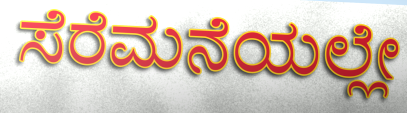
ಸೆರೆಮನೆಯಲ್ಲೇ